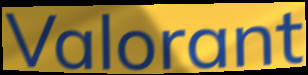
Valorant